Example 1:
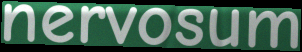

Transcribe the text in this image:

nervosum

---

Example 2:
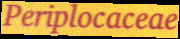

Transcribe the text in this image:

Periplocaceae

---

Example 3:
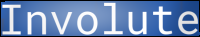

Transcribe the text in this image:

Involute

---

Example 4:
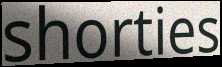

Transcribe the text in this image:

shorties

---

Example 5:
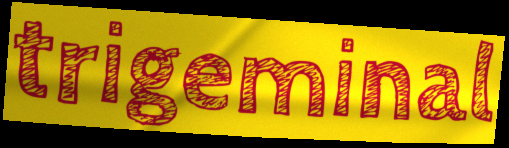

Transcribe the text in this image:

trigeminal